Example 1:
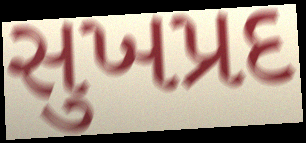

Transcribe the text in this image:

સુખપ્રદ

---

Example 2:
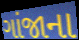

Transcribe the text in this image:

ગાંજાના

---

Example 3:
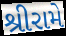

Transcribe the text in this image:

શ્રીરામે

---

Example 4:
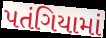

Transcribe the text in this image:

પતંગિયામાં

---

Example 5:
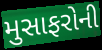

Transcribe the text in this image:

મુસાફરોની